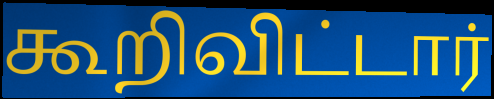
கூறிவிட்டார்